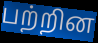
பற்றின